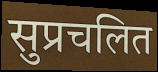
सुप्रचलित